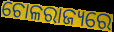
ଚୋଳରାଜ୍ୟରେ